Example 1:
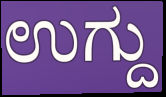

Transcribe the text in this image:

ಉಗ್ದು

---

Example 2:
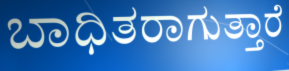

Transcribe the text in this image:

ಬಾಧಿತರಾಗುತ್ತಾರೆ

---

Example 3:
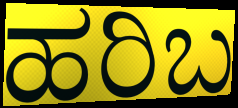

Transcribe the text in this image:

ಹರಿಬ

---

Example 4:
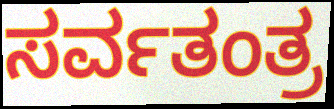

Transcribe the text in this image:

ಸರ್ವತಂತ್ರ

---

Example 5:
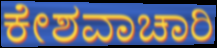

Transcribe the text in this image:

ಕೇಶವಾಚಾರಿ